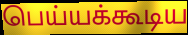
பெய்யக்கூடிய